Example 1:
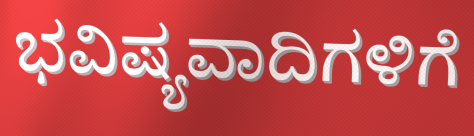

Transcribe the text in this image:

ಭವಿಷ್ಯವಾದಿಗಳಿಗೆ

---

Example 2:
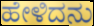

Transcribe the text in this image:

ಹೇಳಿದನು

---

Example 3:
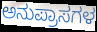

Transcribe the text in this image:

ಅನುಪ್ರಾಸಗಳ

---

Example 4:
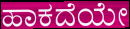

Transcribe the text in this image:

ಹಾಕದೆಯೇ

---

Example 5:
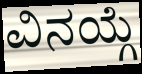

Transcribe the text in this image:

ವಿನಯ್ಗೆ